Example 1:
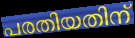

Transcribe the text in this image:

പരതിയതിന്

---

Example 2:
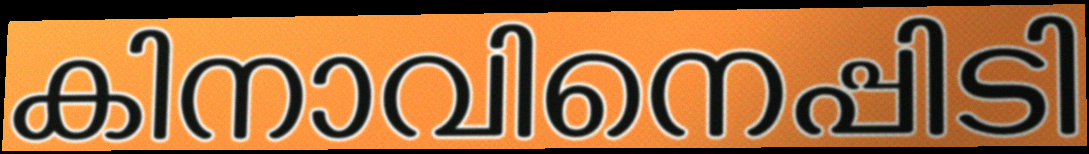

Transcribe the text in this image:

കിനാവിനെപ്പിടി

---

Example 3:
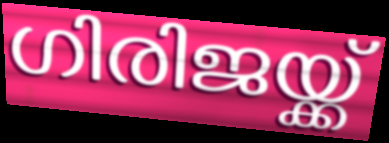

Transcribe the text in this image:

ഗിരിജയ്ക്ക്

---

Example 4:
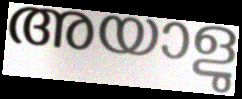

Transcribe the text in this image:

അയാളു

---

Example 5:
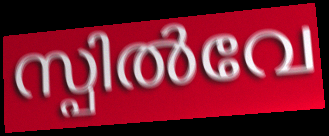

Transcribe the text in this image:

സ്പിൽവേ